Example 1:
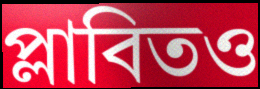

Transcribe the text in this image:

প্লাবিতও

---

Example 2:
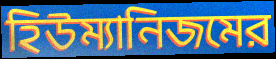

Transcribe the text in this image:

হিউম্যানিজমের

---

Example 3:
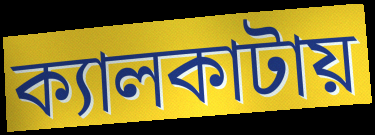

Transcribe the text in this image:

ক্যালকাটায়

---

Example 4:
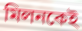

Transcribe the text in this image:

মিলনকেই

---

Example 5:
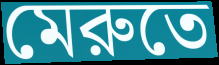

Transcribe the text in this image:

মেরুতে